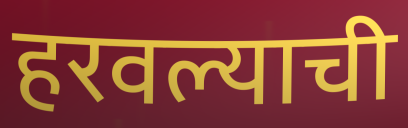
हरवल्याची